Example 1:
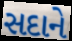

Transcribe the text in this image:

સદાને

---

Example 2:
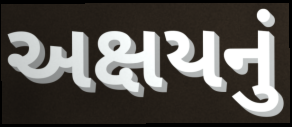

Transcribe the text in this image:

અક્ષયનું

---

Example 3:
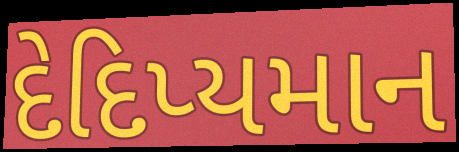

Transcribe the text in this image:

દેદિપ્યમાન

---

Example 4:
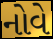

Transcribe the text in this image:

નોવે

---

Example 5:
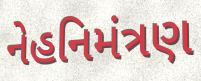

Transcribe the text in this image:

નેહનિમંત્રણ